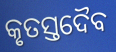
କୃତସ୍ତଦୈବ